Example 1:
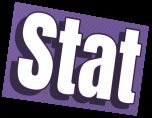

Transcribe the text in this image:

Stat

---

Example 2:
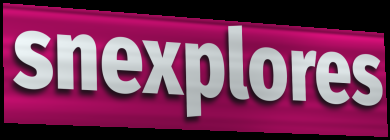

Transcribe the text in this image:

snexplores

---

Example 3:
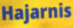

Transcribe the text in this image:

Hajarnis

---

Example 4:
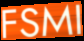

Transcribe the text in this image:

FSMI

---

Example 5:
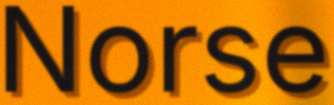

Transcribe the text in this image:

Norse